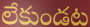
లేకుండట